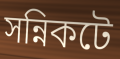
সন্নিকটে